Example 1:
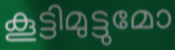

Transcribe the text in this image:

കൂട്ടിമുട്ടുമോ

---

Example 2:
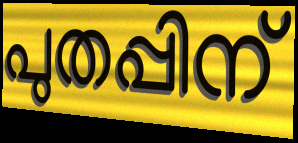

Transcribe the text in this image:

പുതപ്പിന്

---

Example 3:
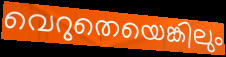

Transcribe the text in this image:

വെറുതെയെങ്കിലും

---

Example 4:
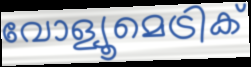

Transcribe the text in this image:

വോള്യൂമെട്രിക്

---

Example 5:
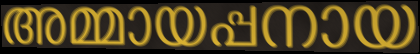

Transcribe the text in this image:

അമ്മായപ്പനായ